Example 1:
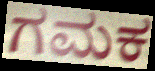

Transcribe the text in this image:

ಗಮಕ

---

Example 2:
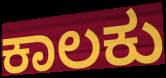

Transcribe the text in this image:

ಕಾಲಕು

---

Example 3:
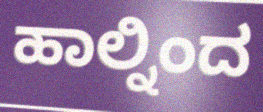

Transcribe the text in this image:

ಹಾಲ್ನಿಂದ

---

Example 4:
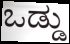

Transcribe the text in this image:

ಒಡ್ಡು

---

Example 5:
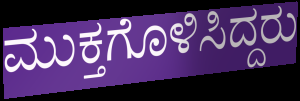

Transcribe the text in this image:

ಮುಕ್ತಗೊಳಿಸಿದ್ದರು